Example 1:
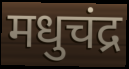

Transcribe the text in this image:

मधुचंद्र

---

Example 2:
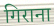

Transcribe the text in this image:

गिराना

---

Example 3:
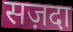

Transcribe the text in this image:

सज़दा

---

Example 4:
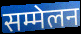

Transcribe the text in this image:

सम्‍मेलन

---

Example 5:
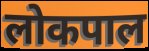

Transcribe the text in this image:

लोकपाल